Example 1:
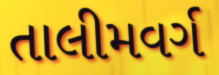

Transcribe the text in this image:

તાલીમવર્ગ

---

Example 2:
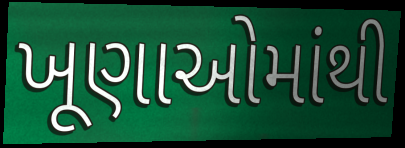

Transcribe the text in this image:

ખૂણાઓમાંથી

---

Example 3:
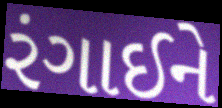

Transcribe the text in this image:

રંગાઈને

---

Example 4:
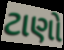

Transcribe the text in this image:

ટાણો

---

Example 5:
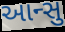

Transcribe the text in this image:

આન્સુ